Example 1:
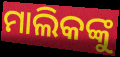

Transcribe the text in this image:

ମାଲିକଙ୍କୁ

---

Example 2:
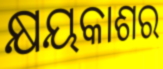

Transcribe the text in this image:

କ୍ଷୟକାଶର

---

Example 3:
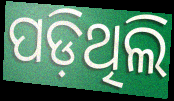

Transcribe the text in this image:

ପଡ଼ିଥିଲି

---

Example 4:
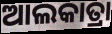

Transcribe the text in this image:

ଆଲକାତ୍ରା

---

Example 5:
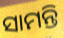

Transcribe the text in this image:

ସାମନ୍ତି